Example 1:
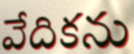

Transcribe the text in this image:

వేదికను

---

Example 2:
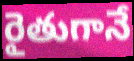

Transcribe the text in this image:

రైతుగానే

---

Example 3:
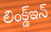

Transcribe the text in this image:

లింక్డ్ఇన్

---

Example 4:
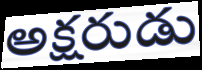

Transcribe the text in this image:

అక్షరుడు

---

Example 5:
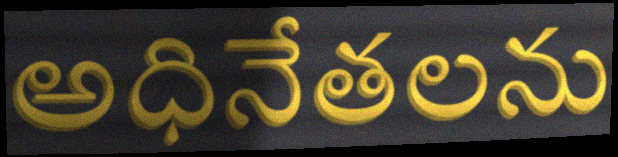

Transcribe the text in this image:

అధినేతలను